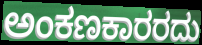
ಅಂಕಣಕಾರರದು